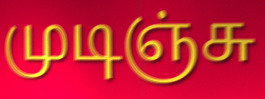
முடிஞ்சு